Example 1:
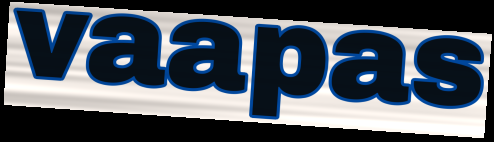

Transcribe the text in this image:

vaapas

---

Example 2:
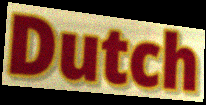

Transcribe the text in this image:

Dutch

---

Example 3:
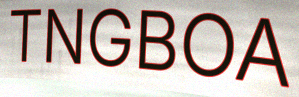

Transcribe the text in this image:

TNGBOA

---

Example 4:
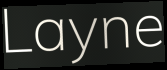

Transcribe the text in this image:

Layne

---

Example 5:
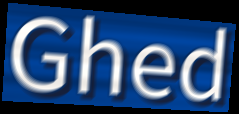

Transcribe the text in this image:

Ghed